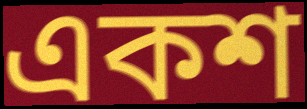
একশ